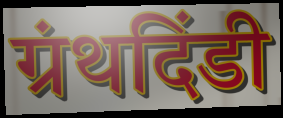
ग्रंथदिंडी